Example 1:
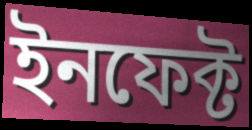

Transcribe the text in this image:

ইনফেক্ট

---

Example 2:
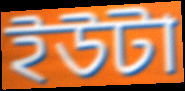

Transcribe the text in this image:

ইউটা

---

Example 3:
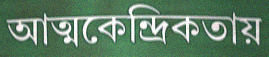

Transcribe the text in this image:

আত্মকেন্দ্রিকতায়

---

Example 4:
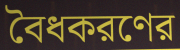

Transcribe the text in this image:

বৈধকরণের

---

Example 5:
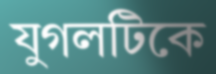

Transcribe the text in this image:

যুগলটিকে